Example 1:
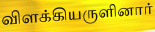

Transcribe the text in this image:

விளக்கியருளினார்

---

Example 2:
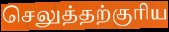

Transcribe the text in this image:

செலுத்தற்குரிய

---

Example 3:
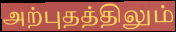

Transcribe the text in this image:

அற்புதத்திலும்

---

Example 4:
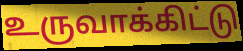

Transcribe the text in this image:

உருவாக்கிட்டு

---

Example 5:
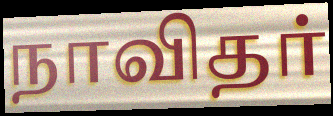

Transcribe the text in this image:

நாவிதர்